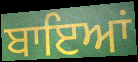
ਬਾਇਆਂ